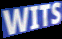
WITS